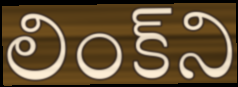
లింక్‌ని